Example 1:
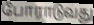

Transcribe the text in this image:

போராடுவது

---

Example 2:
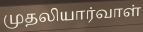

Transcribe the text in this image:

முதலியார்வாள்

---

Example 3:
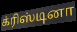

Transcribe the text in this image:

க்ரிஸ்டினா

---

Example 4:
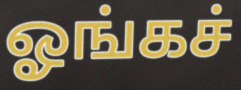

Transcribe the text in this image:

ஓங்கச்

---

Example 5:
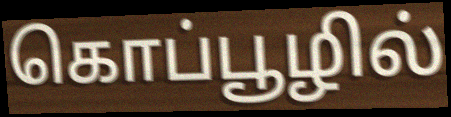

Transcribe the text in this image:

கொப்பூழில்